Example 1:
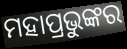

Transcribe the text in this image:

ମହାପ୍ରଭୁଙ୍କର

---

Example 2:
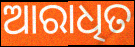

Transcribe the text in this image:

ଆରାଧିତ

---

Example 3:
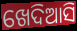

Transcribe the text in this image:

ଖେଦିଆସି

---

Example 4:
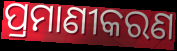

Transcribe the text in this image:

ପ୍ରମାଣୀକରଣ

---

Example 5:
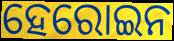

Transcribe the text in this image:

ହେରୋଇନ